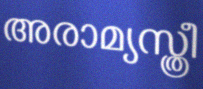
അരാമ്യസ്ത്രീ